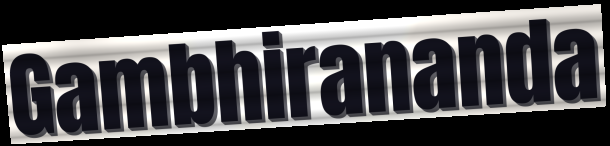
Gambhirananda